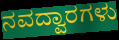
ನವದ್ವಾರಗಳು